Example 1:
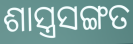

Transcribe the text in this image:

ଶାସ୍ତ୍ରସଙ୍ଗତ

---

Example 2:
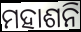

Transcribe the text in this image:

ମହାଶନି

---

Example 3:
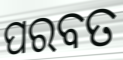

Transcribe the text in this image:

ପରବତ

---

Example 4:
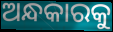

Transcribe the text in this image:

ଅନ୍ଧକାରକୁ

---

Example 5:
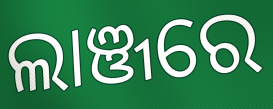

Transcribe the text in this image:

ଲାଞ୍ଜରେ